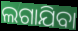
ଲଗାଯିବା